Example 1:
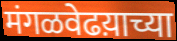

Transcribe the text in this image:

मंगळवेढय़ाच्या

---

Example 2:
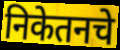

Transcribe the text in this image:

निकेतनचे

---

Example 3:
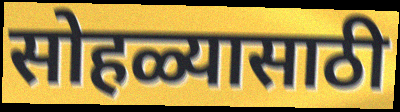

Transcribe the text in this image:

सोहळ्यासाठी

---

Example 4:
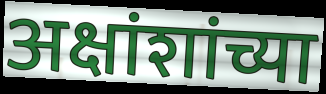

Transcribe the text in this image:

अक्षांशांच्या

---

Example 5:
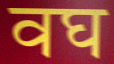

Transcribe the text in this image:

वघ